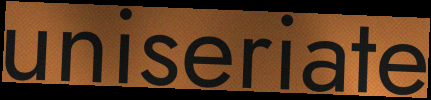
uniseriate